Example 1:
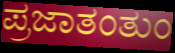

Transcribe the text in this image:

ಪ್ರಜಾತಂತುಂ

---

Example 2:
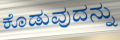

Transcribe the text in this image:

ಕೊಡುವುದನ್ನು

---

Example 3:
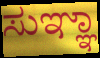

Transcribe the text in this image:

ಸುಞ್ಞಾ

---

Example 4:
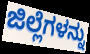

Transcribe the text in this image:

ಜಿಲ್ಲೆಗಳನ್ನು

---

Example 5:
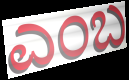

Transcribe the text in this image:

ಎಂಬ